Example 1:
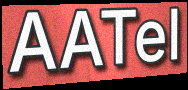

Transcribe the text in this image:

AATel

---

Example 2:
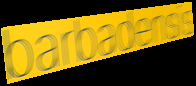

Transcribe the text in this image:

barbadensis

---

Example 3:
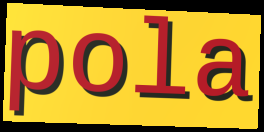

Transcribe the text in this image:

pola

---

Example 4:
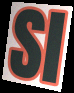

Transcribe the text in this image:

Sl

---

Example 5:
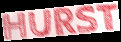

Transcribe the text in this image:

HURST